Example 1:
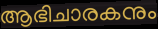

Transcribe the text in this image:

ആഭിചാരകനും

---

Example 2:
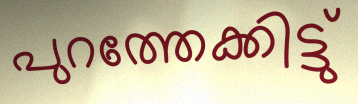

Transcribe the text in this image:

പുറത്തേക്കിട്ടു്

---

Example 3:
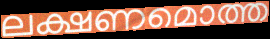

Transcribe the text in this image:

ലക്ഷണമൊത്ത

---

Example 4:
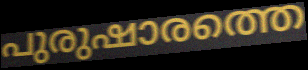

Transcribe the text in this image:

പുരുഷാരത്തെ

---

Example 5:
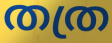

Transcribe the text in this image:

തത്ര